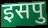
इसपु